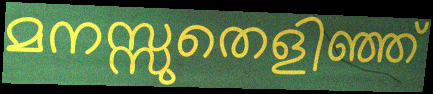
മനസ്സുതെളിഞ്ഞ്